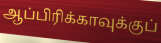
ஆப்பிரிக்காவுக்குப்